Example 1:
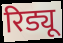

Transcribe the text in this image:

रिड्यू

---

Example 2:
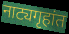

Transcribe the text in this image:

नाट्यगृहांत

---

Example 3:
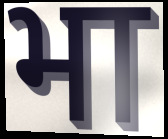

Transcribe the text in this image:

भा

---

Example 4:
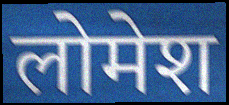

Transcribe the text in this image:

लोमेश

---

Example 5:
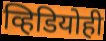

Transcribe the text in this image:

व्हिडियोही